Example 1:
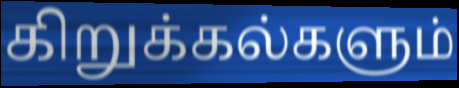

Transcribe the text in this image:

கிறுக்கல்களும்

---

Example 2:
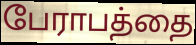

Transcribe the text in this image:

பேராபத்தை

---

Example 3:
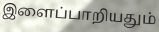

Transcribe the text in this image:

இளைப்பாறியதும்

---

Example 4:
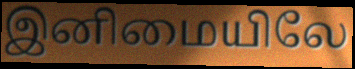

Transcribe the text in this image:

இனிமையிலே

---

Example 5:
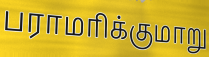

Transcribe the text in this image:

பராமரிக்குமாறு